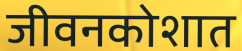
जीवनकोशात